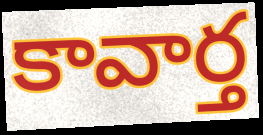
కావార్త